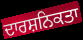
ਦਾਰਸ਼ਨਿਕਤਾ